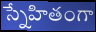
స్నేహితంగా